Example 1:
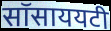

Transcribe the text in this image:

सॉसाययटी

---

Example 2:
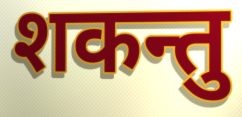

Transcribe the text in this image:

शकन्तु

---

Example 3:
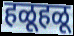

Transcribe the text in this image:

हळूहळू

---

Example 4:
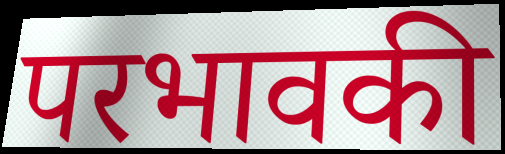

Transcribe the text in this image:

परभावकी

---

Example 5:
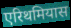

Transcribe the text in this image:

एरिथमियास